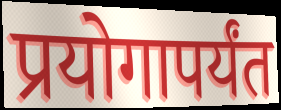
प्रयोगापर्यंत